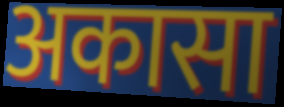
अकासा